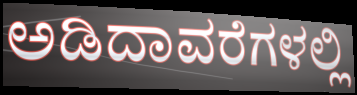
ಅಡಿದಾವರೆಗಳಲ್ಲಿ